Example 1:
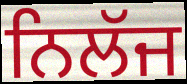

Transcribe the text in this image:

ਨਿਲੱਜ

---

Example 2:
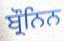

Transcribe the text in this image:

ਬ੍ਰੌਨਿਨ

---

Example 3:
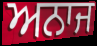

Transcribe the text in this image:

ਅਨਾਜ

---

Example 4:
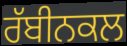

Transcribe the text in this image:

ਰੱਬੀਨਕਲ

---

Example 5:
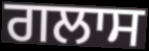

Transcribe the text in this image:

ਗਲਾਸ